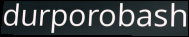
durporobash